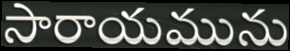
సారాయమును